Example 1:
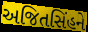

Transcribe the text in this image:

અજિતસિંહને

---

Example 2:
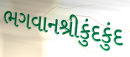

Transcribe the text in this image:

ભગવાનશ્રીકુંદકુંદ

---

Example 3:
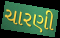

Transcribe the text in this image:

ચારણી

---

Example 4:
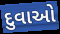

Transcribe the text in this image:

દુવાઓ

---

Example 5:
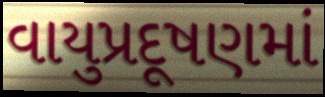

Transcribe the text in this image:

વાયુપ્રદૂષણમાં